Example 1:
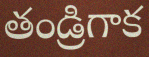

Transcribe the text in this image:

తండ్రిగాక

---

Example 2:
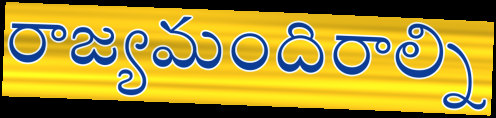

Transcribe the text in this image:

రాజ్యమందిరాల్ని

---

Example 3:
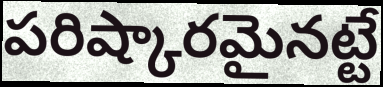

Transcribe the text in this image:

పరిష్కారమైనట్టే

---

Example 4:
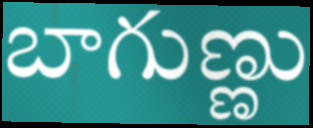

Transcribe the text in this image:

బాగుణ్ణు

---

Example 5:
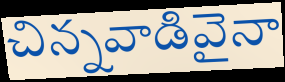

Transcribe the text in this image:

చిన్నవాడివైనా